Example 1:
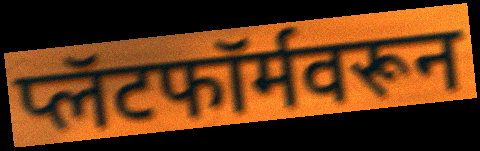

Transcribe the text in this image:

प्लॅटफॉर्मवरून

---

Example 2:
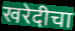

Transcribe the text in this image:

खरेदीचा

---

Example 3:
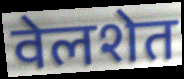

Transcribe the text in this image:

वेलशेत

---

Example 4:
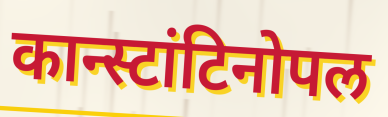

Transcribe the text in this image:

कान्स्टांटिनोपल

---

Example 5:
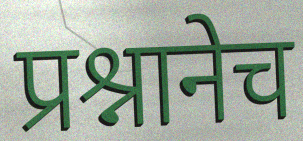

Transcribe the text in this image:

प्रश्नानेच